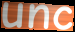
unc